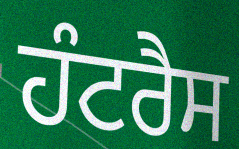
ਹੰਟਰੈਸ